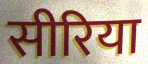
सीरिया